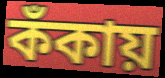
কঁকায়